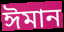
ঈমান